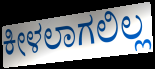
ಕೀಳಲಾಗಲಿಲ್ಲ